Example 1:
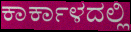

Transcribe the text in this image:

ಕಾರ್ಕಾಳದಲ್ಲಿ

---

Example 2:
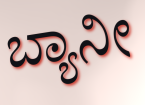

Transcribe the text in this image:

ಬ್ಯಾನೀ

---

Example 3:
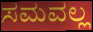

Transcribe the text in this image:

ಸಮವಲ್ಲ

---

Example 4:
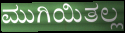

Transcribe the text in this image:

ಮುಗಿಯಿತಲ್ಲ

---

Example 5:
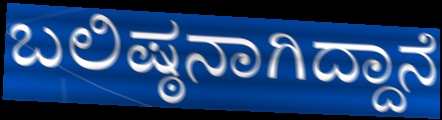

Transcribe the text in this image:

ಬಲಿಷ್ಠನಾಗಿದ್ದಾನೆ